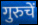
गुरुचें